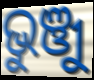
ଭୁଞ୍ଜୁ